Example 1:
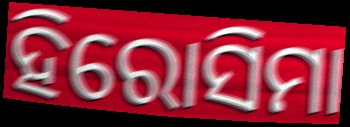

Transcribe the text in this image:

ହିରୋସିମା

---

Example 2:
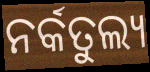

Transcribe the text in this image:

ନର୍କତୁଲ୍ୟ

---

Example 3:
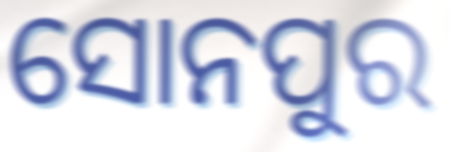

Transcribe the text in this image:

ସୋନପୁର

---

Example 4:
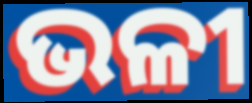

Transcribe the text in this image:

ଭଳୀ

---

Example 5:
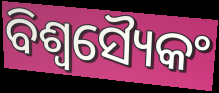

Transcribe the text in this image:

ବିଶ୍ୱସ୍ୟୈକଂ